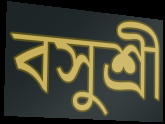
বসুশ্রী